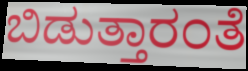
ಬಿಡುತ್ತಾರಂತೆ